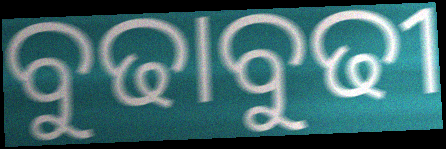
ବୁଢାବୁଢୀ